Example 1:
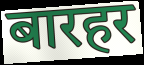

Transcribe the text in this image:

बारहर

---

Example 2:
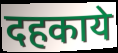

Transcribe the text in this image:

दहकाये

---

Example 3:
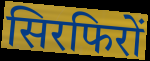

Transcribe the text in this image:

सिरफिरों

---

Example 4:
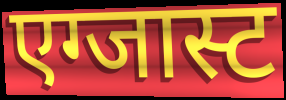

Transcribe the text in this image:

एग्जास्ट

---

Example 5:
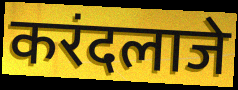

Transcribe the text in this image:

करंदलाजे